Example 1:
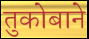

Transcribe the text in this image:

तुकोबाने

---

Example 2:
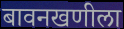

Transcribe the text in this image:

बावनखणीला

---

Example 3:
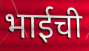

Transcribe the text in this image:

भाईची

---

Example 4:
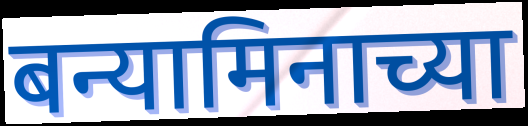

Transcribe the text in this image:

बन्यामिनाच्या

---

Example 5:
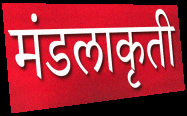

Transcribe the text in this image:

मंडलाकृती